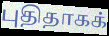
புதிதாகக்